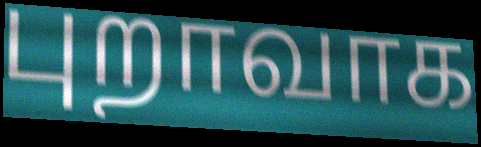
புறாவாக